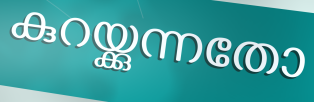
കുറയ്ക്കുന്നതോ